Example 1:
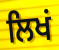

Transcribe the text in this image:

ਲਿਖਂ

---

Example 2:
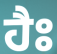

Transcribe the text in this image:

ਹੈਃ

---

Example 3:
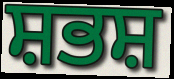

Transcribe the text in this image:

ਸ਼ਭਸ਼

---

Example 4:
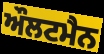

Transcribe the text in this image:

ਔਲਟਮੈਨ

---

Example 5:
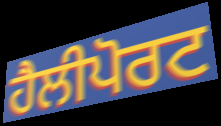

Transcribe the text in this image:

ਹੈਲੀਪੋਰਟ